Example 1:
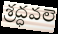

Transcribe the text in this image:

శ్రద్ధవలె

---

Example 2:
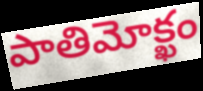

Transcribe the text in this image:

పాతిమోక్ఖం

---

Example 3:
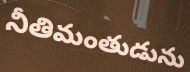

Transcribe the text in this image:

నీతిమంతుడును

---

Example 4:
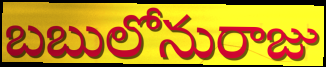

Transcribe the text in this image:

బబులోనురాజు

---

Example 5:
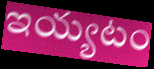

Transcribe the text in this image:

ఇయ్యటం